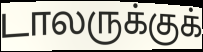
டாலருக்குக்